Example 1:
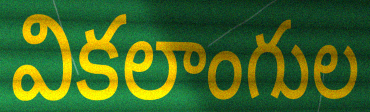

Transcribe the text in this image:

వికలాంగుల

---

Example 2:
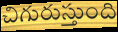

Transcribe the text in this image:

చిగురుస్తుంది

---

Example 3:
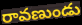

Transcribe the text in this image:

రావణుండు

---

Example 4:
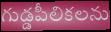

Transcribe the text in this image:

గుడ్డపీలికలను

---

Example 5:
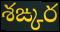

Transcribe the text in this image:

శఙ్కర